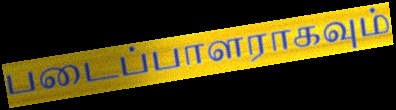
படைப்பாளராகவும்